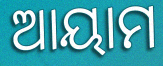
ଆୟାମ